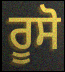
ਰੂਸੋ